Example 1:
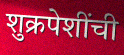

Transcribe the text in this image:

शुक्रपेशींची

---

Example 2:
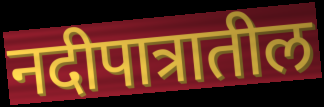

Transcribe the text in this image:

नदीपात्रातील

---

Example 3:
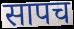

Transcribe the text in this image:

सापच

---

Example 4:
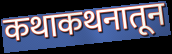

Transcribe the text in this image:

कथाकथनातून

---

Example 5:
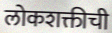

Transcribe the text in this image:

लोकशक्तीची